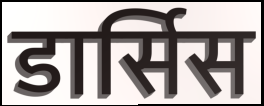
डार्सिस